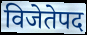
विजेतेपद